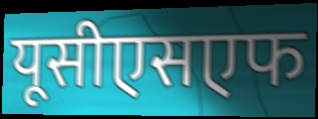
यूसीएसएफ